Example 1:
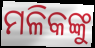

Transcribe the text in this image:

ମଳିକଙ୍କୁ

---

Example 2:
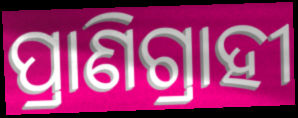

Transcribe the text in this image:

ପ୍ରାଣିଗ୍ରାହୀ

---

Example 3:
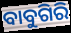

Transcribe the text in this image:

ବାବୁଗିରି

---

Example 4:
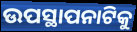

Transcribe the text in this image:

ଉପସ୍ଥାପନାଟିକୁ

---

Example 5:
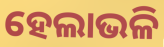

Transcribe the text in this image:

ହେଲାଭଳି